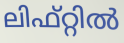
ലിഫ്റ്റിൽ